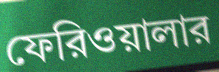
ফেরিওয়ালার